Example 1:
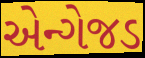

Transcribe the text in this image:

એન્ગેજડ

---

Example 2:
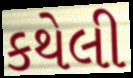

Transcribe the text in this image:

કથેલી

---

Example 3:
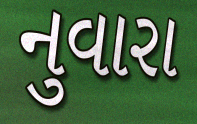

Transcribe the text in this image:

નુવારા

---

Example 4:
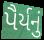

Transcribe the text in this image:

પૈર્યનું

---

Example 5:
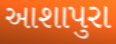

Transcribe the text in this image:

આશાપુરા